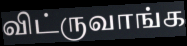
விட்ருவாங்க